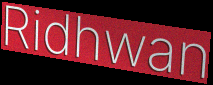
Ridhwan